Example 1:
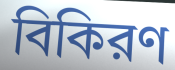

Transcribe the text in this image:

বিকিরণ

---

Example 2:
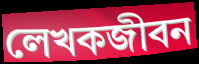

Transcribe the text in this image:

লেখকজীবন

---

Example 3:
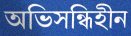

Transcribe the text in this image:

অভিসন্ধিহীন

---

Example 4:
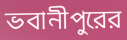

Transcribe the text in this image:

ভবানীপুরের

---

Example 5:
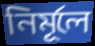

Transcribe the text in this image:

নির্মূলে